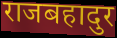
राजबहादुर